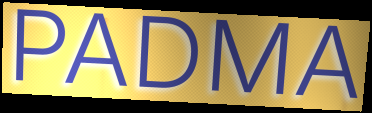
PADMA